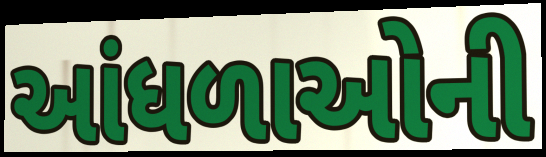
આંધળાઓની